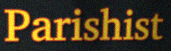
Parishist